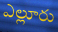
ఎల్లూరు